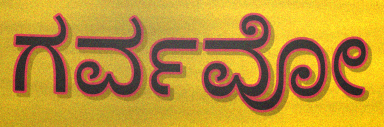
ಗರ್ವವೋ